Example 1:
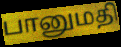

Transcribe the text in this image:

பானுமதி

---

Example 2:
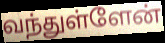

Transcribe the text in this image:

வந்துள்ளேன்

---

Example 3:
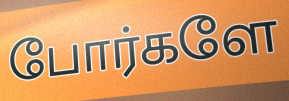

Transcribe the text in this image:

போர்களே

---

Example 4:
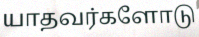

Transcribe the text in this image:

யாதவர்களோடு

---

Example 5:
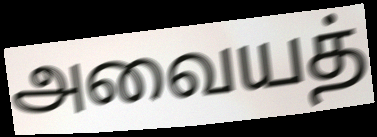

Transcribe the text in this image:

அவையத்